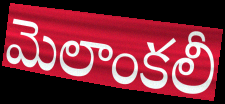
మెలాంకలీ